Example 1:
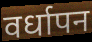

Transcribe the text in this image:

वर्धापन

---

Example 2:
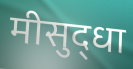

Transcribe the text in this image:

मीसुद्धा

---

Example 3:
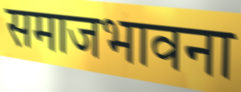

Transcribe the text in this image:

समाजभावना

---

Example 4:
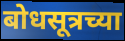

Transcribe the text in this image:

बोधसूत्रच्या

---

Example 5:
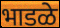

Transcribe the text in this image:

भाडळे